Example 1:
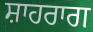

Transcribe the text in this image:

ਸ਼ਾਹਰਾਗ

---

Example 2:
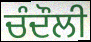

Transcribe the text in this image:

ਚੰਦੌਲੀ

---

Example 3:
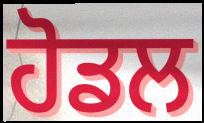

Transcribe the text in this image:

ਹੋਡਲ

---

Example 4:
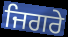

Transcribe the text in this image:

ਜਿਗਰੇ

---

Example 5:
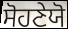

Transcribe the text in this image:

ਸੋਹਣੇਯੋ